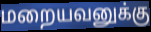
மறையவனுக்கு